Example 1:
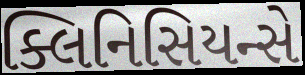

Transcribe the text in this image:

ક્લિનિસિયન્સે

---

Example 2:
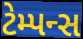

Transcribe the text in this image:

ટેમ્પન્સ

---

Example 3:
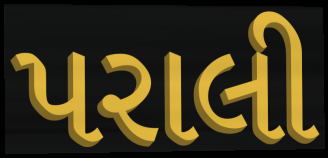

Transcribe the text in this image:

પરાલી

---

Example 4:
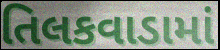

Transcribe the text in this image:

તિલકવાડામાં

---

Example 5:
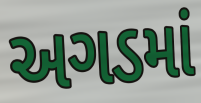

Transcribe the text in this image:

અગડમાં